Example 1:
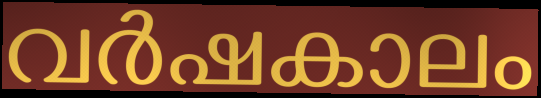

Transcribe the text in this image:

വർഷകാലം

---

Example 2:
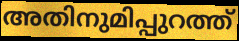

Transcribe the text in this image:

അതിനുമിപ്പുറത്ത്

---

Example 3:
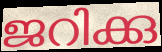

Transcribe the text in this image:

ജറിക്കു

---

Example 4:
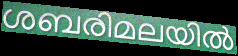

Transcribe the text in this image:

ശബരിമലയിൽ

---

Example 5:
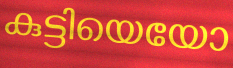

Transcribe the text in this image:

കുട്ടിയെയോ